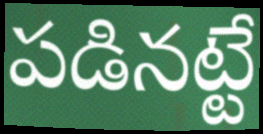
పడినట్టే